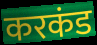
करकंड